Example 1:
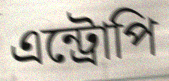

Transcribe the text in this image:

এন্ট্রোপি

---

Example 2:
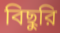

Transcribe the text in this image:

বিছুরি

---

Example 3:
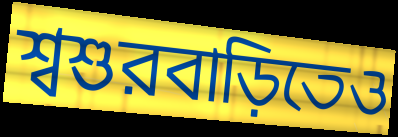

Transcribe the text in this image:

শ্বশুরবাড়িতেও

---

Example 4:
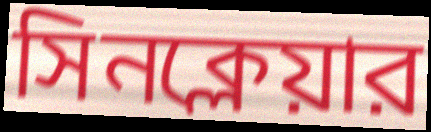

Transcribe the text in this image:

সিনক্লেয়ার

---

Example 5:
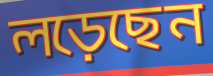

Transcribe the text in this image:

লড়েছেন